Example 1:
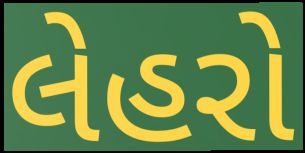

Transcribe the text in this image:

લેહરો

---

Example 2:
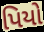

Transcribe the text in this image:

પિયો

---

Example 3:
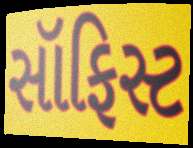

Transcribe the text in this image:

સૉફિસ્ટ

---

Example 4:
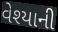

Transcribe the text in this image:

વેશ્યાની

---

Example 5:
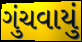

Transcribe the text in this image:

ગુંચવાયું